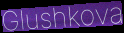
Glushkova